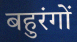
बहुरंगों